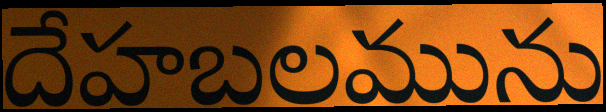
దేహబలమును